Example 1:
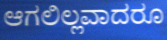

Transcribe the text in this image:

ಆಗಲಿಲ್ಲವಾದರೂ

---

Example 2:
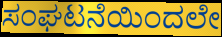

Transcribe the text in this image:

ಸಂಘಟನೆಯಿಂದಲೇ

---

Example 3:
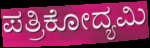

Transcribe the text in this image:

ಪತ್ರಿಕೋದ್ಯಮಿ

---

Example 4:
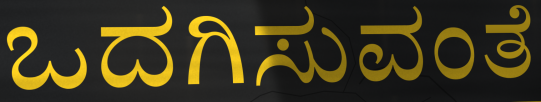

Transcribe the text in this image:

ಒದಗಿಸುವಂತೆ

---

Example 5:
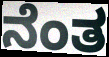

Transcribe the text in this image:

ನೆಂತ